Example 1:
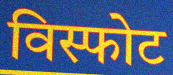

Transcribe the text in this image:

विस्फोट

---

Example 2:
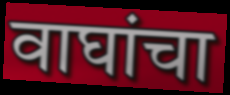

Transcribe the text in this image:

वाघांचा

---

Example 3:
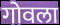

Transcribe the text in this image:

गोवला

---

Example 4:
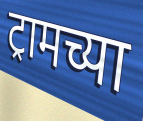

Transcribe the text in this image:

ट्रामच्या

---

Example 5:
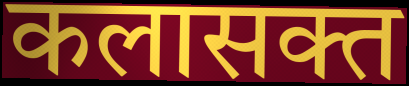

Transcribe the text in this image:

कलासक्त